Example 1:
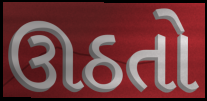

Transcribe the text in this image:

ઊઠતો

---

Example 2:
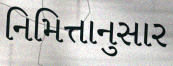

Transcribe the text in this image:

નિમિત્તાનુસાર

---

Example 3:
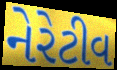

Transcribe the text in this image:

નેરેટીવ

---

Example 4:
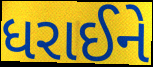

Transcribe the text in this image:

ધરાઈને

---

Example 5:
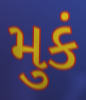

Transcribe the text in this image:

મુકં